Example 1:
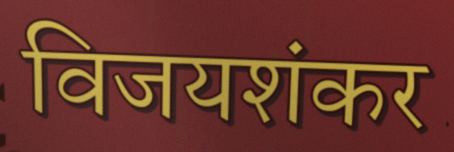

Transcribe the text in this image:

विजयशंकर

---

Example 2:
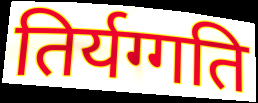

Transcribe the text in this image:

तिर्यग्गति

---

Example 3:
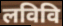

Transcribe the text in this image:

लविवि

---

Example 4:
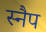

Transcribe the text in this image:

स्नैप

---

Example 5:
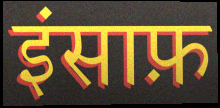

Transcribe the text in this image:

इंसाफ़